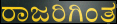
ರಾಜರಿಗಿಂತ